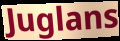
Juglans